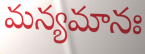
మన్యమానః